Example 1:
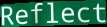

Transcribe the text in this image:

Reflect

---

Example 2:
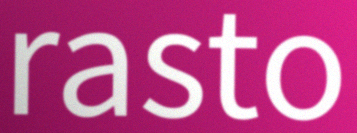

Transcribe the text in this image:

rasto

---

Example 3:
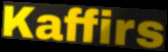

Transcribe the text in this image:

Kaffirs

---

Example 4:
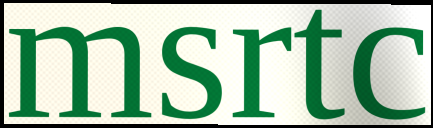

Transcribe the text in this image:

msrtc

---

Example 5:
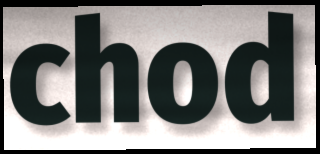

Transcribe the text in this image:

chod